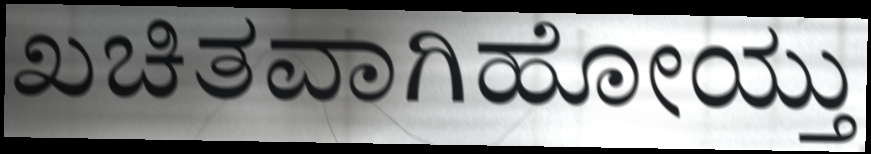
ಖಚಿತವಾಗಿಹೋಯ್ತು